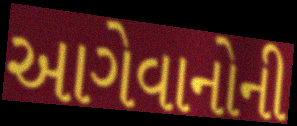
આગેવાનોની